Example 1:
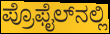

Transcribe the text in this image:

ಪ್ರೊಫೈಲ್‌ನಲ್ಲಿ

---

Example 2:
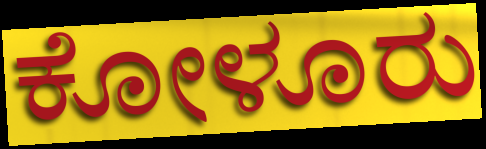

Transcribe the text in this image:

ಕೋಳೂರು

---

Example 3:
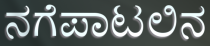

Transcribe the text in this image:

ನಗೆಪಾಟಲಿನ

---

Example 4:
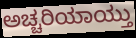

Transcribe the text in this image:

ಅಚ್ಚರಿಯಾಯ್ತು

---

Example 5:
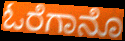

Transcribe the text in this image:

ಓರೆಗಾನೊ